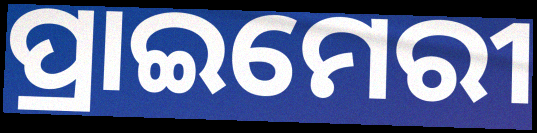
ପ୍ରାଇମେରୀ